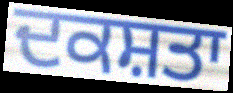
ਦਕਸ਼ਤਾ